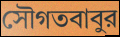
সৌগতবাবুর